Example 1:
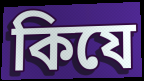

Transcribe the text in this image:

কিযে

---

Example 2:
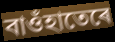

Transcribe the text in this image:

বাওঁহাতেৰে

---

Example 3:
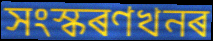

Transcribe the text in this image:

সংস্কৰণখনৰ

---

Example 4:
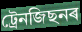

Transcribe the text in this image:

ট্ৰেনজিছনৰ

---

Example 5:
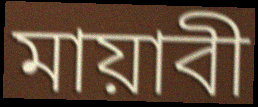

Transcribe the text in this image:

মায়াবী